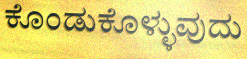
ಕೊಂಡುಕೊಳ್ಳುವುದು